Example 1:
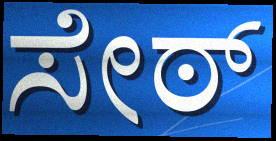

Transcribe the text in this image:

ಸೇಠ್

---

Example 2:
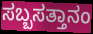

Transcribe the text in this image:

ಸಬ್ಬಸತ್ತಾನಂ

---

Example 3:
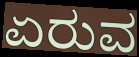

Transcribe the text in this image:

ಏರುವ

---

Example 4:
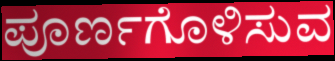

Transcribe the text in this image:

ಪೂರ್ಣಗೊಳಿಸುವ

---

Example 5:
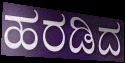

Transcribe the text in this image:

ಹರಡಿದ